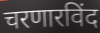
चरणारविंद